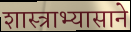
शास्त्राभ्यासाने